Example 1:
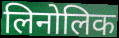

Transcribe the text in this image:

लिनोलिक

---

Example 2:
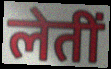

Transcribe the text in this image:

लेतीं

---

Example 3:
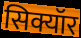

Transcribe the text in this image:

सिक्यॉर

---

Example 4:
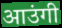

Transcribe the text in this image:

आउंगी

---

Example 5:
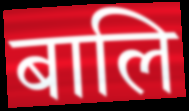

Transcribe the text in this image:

बालि